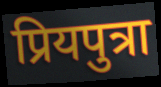
प्रियपुत्रा